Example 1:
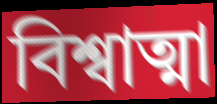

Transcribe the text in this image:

বিশ্বাত্মা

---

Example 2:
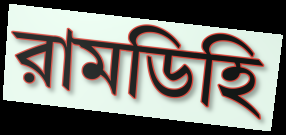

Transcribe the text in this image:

রামডিহি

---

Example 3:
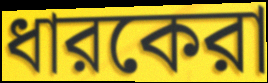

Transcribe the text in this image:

ধারকেরা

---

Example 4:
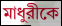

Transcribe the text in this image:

মাধুরীকে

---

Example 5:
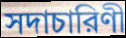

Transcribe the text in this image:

সদাচারিণী